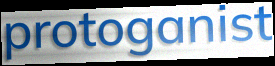
protoganist